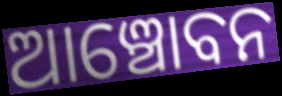
ଆଞ୍ଚୋବନ